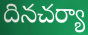
దినచర్యా